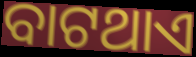
ବାଟଥାଏ